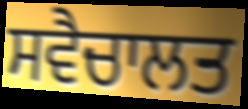
ਸਵੈਚਾਲਤ